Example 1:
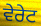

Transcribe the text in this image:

ਵੇਰੇਟ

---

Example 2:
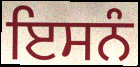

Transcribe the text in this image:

ਇਸਨੰ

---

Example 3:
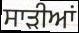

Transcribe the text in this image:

ਸਾਡ਼ੀਆਂ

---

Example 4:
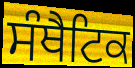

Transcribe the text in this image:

ਸੰਥੈਟਿਕ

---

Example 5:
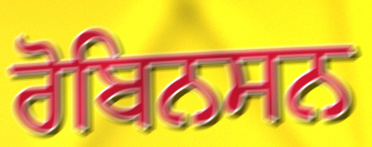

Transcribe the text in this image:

ਰੋਬਿਨਸਨ